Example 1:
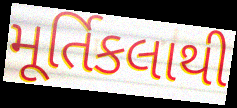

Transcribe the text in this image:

મૂર્તિકલાથી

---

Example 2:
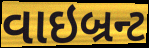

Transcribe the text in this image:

વાઇબ્રન્ટ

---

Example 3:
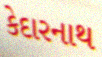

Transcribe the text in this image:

કેદારનાથ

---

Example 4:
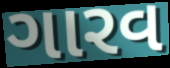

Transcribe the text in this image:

ગારવ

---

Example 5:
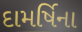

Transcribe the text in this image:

દામર્ષિના